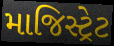
માજિસ્ટ્રેટ